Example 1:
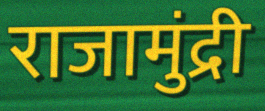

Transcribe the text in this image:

राजामुंद्री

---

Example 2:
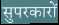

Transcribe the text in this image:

सुपरकारों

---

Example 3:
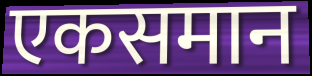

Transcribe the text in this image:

एकसमान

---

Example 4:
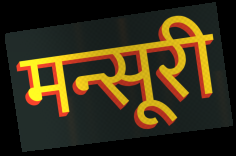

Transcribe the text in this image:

मन्सूरी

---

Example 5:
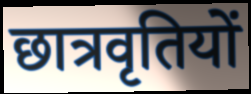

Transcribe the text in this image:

छात्रवृतियों